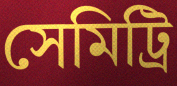
সেমিট্রি